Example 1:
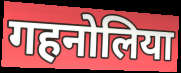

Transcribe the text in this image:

गहनोलिया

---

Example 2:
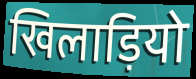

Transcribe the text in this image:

खिलाड़ियो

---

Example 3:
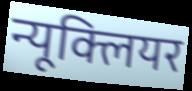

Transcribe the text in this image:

न्‍यूक्लियर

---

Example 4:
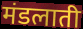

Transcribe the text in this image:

मंडलाती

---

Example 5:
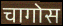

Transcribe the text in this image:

चागोस